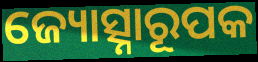
ଜ୍ୟୋତ୍ସ୍ନାରୂପକ